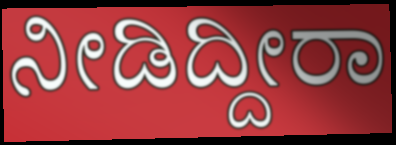
ನೀಡಿದ್ದೀರಾ